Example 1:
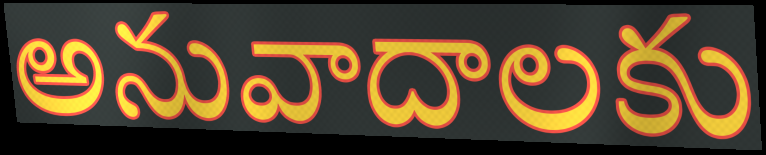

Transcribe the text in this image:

అనువాదాలకు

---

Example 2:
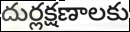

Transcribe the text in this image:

దుర్లక్షణాలకు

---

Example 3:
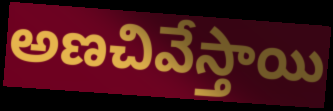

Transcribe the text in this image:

అణచివేస్తాయి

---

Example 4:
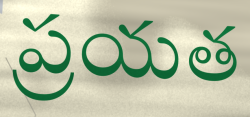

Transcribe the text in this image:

ప్రయత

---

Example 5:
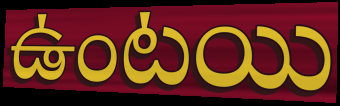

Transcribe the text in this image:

ఉంటయి